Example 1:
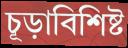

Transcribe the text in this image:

চূড়াবিশিষ্ট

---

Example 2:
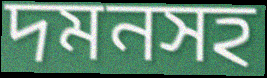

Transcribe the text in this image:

দমনসহ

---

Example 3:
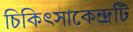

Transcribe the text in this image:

চিকিৎসাকেন্দ্রটি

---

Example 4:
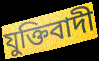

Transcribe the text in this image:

যুক্তিবাদী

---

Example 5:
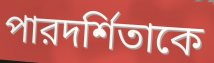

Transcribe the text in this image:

পারদর্শিতাকে